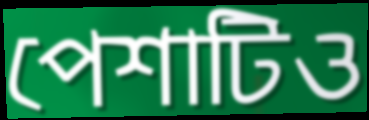
পেশাটিও